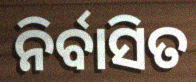
ନିର୍ବାସିତ